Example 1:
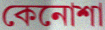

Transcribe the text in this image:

কেনোশা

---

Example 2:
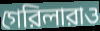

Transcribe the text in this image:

গেরিলারাও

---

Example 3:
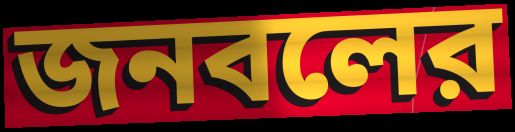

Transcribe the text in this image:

জনবলের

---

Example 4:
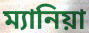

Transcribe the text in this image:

ম্যানিয়া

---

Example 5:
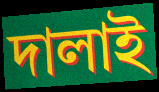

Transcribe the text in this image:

দালাই